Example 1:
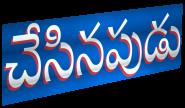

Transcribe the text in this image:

చేసినపుడు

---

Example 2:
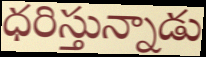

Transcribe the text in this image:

ధరిస్తున్నాడు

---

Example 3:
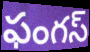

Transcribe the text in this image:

ఫంగస్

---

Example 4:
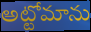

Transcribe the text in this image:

అట్టోమాను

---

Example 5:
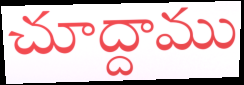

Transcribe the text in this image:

చూద్దాము